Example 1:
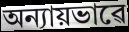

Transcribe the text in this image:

অন্যায়ভাৱে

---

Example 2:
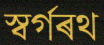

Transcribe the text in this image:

স্বৰ্গৰথ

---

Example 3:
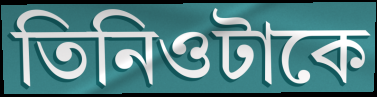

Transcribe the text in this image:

তিনিওটাকে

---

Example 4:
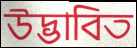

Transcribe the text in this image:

উদ্ভাবিত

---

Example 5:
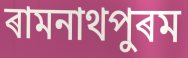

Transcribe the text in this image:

ৰামনাথপুৰম